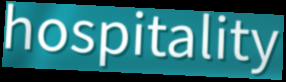
hospitality